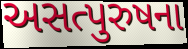
અસત્પુરુષના